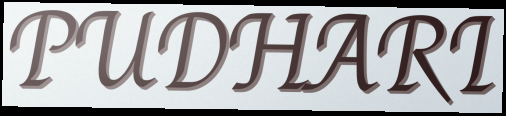
PUDHARI